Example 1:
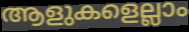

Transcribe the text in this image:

ആളുകളെല്ലാം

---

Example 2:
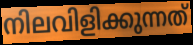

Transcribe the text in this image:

നിലവിളിക്കുന്നത്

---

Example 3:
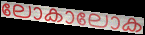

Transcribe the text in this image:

ലോകാലോക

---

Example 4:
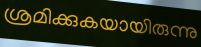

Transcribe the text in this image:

ശ്രമിക്കുകയായിരുന്നു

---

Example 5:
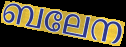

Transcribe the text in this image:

ബലേന